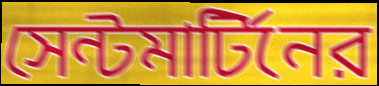
সেন্টমার্টিনের